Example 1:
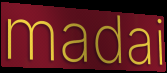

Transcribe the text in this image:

madai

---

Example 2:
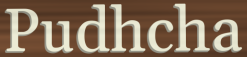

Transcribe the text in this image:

Pudhcha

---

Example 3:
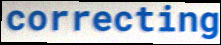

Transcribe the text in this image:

correcting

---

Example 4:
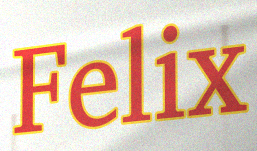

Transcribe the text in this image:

Felix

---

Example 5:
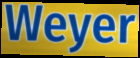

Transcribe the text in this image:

Weyer